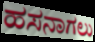
ಹಸನಾಗಲು